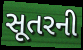
સૂતરની